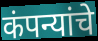
कंपन्यांचे